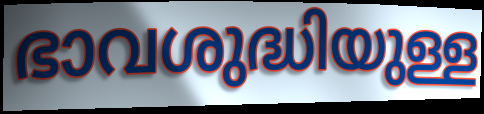
ഭാവശുദ്ധിയുള്ള